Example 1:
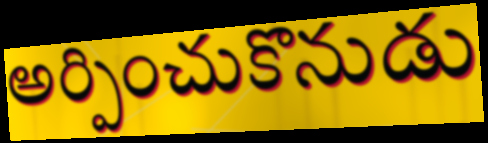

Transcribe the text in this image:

అర్పించుకొనుడు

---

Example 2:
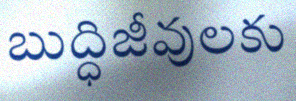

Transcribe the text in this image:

బుద్ధిజీవులకు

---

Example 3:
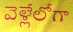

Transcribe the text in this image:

వెళ్లేలోగా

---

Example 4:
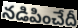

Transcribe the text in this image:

నడిపించేదీ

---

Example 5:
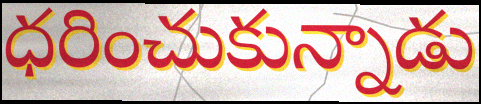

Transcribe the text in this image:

ధరించుకున్నాడు